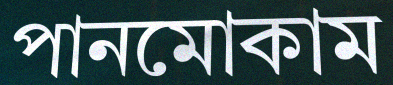
পানমোকাম